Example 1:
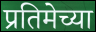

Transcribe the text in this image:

प्रतिमेच्या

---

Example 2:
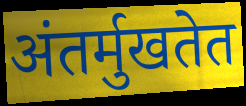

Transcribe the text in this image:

अंतर्मुखतेत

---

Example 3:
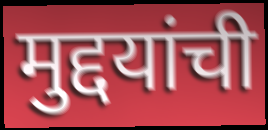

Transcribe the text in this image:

मुद्दयांची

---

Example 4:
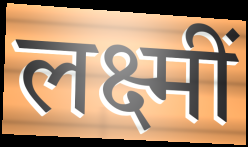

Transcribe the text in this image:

लक्ष्मीं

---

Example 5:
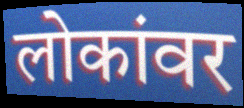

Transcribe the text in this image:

लोकांवर